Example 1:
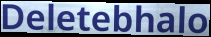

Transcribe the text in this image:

Deletebhalo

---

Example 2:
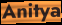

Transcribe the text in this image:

Anitya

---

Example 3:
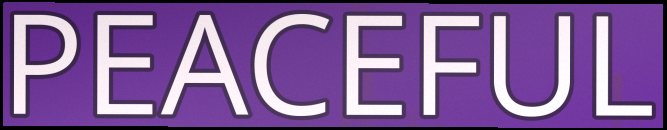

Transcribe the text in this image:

PEACEFUL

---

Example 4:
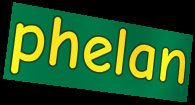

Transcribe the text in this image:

phelan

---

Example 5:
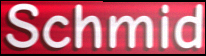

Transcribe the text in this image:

Schmid